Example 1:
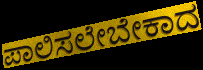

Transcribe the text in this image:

ಪಾಲಿಸಲೇಬೇಕಾದ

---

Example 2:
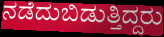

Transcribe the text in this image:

ನಡೆದುಬಿಡುತ್ತಿದ್ದರು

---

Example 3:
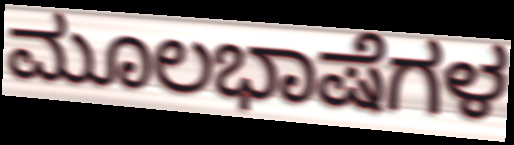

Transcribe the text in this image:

ಮೂಲಭಾಷೆಗಳ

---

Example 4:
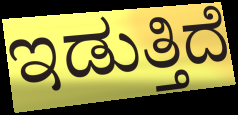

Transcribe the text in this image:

ಇಡುತ್ತಿದೆ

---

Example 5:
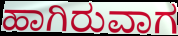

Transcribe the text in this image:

ಹಾಗಿರುವಾಗ